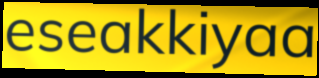
eseakkiyaa